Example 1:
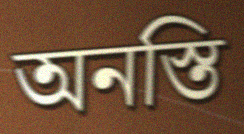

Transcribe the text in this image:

অনস্তি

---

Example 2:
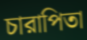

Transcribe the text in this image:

চারাপিতা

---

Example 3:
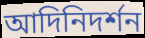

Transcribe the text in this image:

আদিনিদর্শন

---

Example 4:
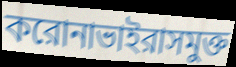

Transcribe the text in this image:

করোনাভাইরাসমুক্ত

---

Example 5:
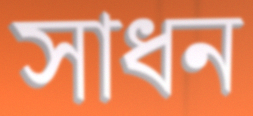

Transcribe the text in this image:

সাধন